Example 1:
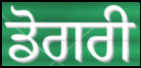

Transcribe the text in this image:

ਡੋਗਰੀ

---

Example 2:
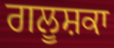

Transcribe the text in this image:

ਗਲੂਸ਼ਕਾ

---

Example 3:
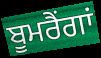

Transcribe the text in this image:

ਬੂਮਰੈਂਗਾਂ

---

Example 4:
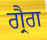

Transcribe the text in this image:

ਗ੍ਰੈਗ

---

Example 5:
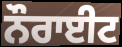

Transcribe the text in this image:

ਨੌਰਾਈਟ